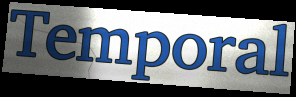
Temporal